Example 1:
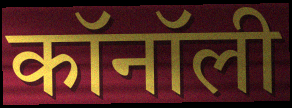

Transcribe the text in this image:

कॉनॉली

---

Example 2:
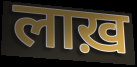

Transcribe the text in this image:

लाख़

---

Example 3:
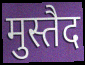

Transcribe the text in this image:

मुस्तैद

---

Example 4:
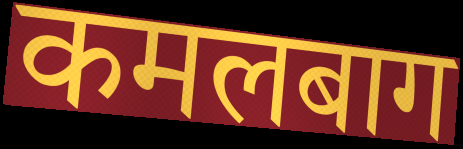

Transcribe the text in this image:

कमलबाग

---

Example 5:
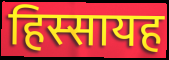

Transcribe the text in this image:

हिस्सायह